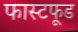
फास्‍टफूड